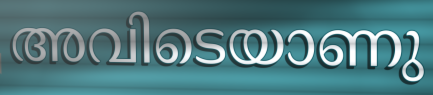
അവിടെയാണു